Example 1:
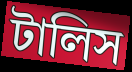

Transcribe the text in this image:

টালিস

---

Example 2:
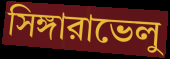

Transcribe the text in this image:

সিঙ্গারাভেলু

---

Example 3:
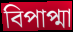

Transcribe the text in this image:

বিপাপ্মা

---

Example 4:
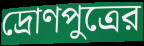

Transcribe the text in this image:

দ্রোণপুত্রের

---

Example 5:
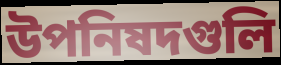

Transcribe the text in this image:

উপনিষদগুলি